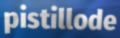
pistillode